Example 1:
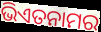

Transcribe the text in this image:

ଭିଏତନାମର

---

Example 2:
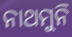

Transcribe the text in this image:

ନାଥମୁନି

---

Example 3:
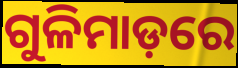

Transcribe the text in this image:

ଗୁଳିମାଡ଼ରେ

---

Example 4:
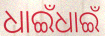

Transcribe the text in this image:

ଧାଇଁଧାଇଁ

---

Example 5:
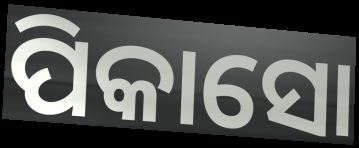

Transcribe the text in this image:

ପିକାସୋ